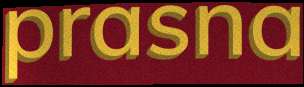
prasna